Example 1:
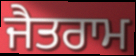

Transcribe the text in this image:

ਜੈਤਰਾਮ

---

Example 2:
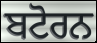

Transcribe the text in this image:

ਬਟੋਰਨ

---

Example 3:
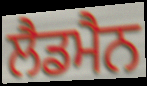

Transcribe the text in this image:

ਲੈਡਮੈਨ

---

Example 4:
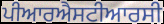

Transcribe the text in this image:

ਪੀਆਰਐਸਟੀਆਰਸੀ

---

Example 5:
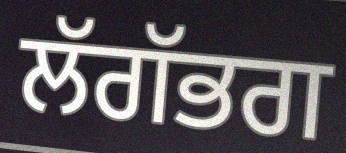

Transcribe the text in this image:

ਲੱਗੱਭਗ